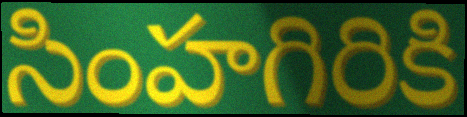
సింహగిరికి